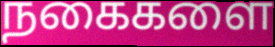
நகைகளை